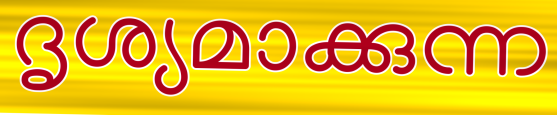
ദൃശ്യമാക്കുന്ന